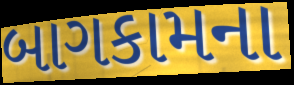
બાગકામના